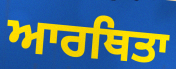
ਆਰਥਿਤਾ